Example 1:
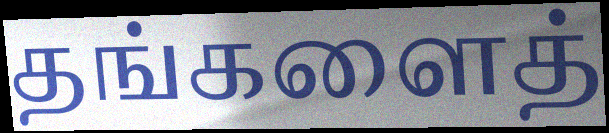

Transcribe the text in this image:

தங்களைத்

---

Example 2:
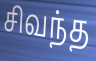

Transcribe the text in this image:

சிவந்த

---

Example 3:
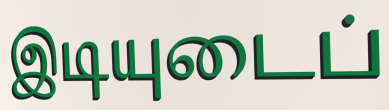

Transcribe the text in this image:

இடியுடைப்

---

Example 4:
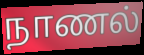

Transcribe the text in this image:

நாணல்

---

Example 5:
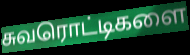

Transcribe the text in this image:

சுவரொட்டிகளை